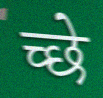
च्छे